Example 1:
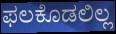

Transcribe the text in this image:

ಫಲಕೊಡಲಿಲ್ಲ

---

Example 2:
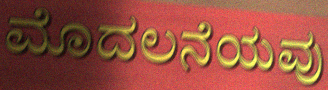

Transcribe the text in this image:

ಮೊದಲನೆಯವು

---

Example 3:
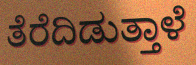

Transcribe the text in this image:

ತೆರೆದಿಡುತ್ತಾಳೆ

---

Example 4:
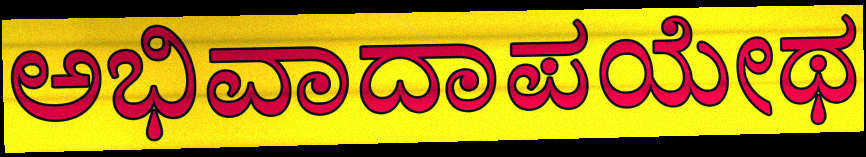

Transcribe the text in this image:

ಅಭಿವಾದಾಪಯೇಥ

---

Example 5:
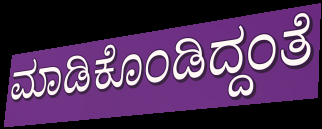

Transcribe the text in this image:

ಮಾಡಿಕೊಂಡಿದ್ದಂತೆ